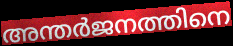
അന്തർജനത്തിനെ